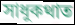
সাধুকথাত